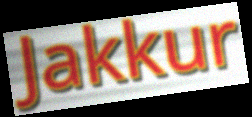
Jakkur